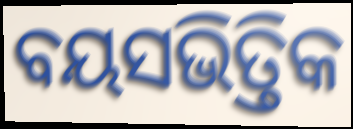
ବୟସଭିତ୍ତିକ